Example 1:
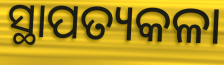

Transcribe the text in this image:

ସ୍ଥାପତ୍ୟକଳା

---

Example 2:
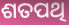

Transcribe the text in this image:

ଶତପଥି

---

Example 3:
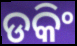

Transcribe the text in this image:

ଡକିଂ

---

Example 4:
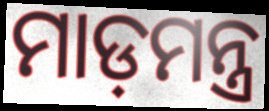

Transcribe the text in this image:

ମାଡ଼ମନ୍ତ୍ର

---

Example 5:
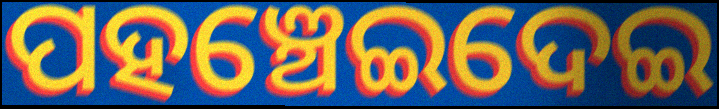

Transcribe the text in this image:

ପହଞ୍ଚେଇଦେଇ